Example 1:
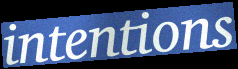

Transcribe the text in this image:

intentions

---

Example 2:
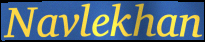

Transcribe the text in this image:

Navlekhan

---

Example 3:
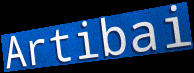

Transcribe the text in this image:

Artibai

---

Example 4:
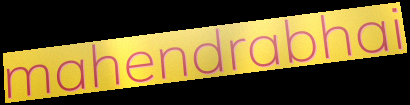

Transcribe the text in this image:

mahendrabhai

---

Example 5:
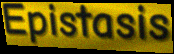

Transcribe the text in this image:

Epistasis